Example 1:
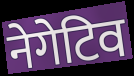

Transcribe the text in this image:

नेगेटिव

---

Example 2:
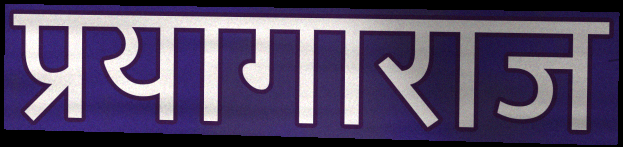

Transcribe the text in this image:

प्रयागाराज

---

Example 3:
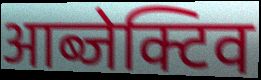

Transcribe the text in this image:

आब्जेक्टिव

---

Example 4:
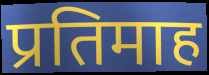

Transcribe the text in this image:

प्रतिमाह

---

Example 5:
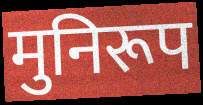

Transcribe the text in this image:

मुनिरूप